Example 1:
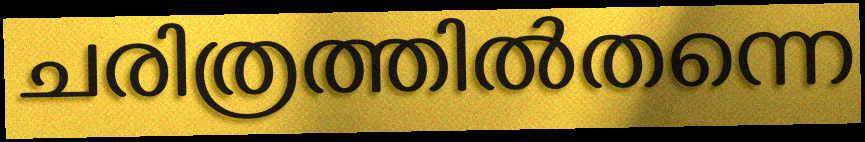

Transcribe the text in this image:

ചരിത്രത്തിൽതന്നെ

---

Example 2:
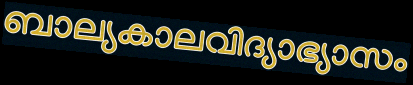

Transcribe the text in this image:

ബാല്യകാലവിദ്യാഭ്യാസം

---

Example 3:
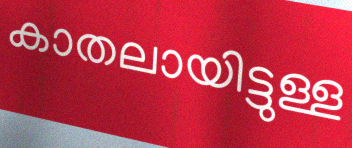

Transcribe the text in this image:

കാതലായിട്ടുള്ള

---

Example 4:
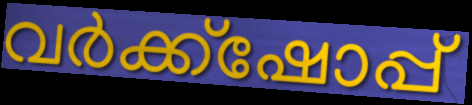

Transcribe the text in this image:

വർക്ക്ഷോപ്പ്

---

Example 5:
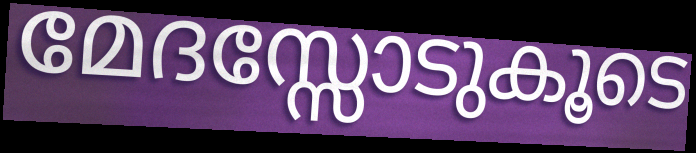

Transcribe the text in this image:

മേദസ്സോടുകൂടെ